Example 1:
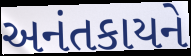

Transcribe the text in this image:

અનંતકાયને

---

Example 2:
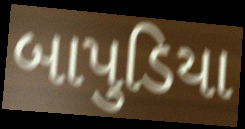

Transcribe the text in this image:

બાપુડિયા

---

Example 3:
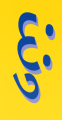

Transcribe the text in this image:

દુઃ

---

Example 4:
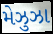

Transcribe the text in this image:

મેઝુઝા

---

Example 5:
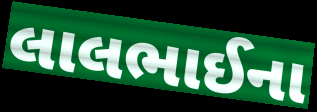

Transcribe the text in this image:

લાલભાઈના